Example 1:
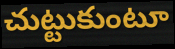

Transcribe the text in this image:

చుట్టుకుంటూ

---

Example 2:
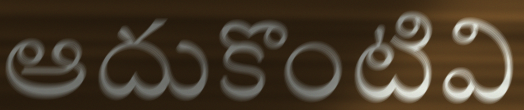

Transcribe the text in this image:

ఆదుకొంటివి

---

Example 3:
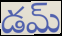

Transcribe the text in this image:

డమ్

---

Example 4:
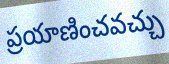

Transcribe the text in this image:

ప్రయాణించవచ్చు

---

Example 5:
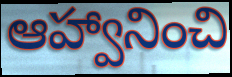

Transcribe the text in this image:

ఆహ్వానించి